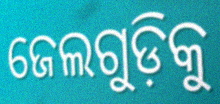
ଜେଲଗୁଡ଼ିକୁ